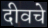
दीवचे